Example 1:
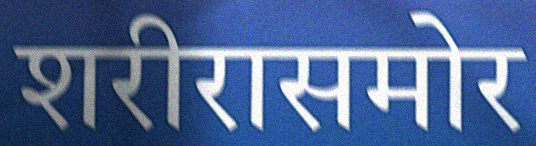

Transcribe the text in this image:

शरीरासमोर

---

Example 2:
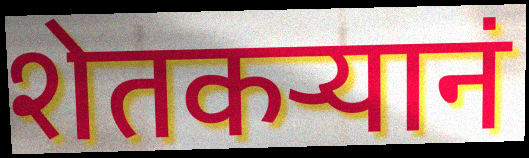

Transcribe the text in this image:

शेतकर्‍यानं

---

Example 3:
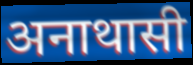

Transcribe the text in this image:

अनाथासी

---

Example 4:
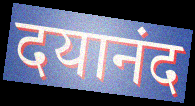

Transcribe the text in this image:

दयानंद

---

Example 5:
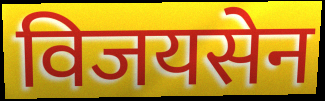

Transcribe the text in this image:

विजयसेन